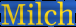
Milch